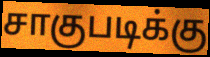
சாகுபடிக்கு